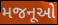
મજનૂઓ